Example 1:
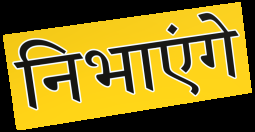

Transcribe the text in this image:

निभाएंगे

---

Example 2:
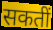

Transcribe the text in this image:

सकतीं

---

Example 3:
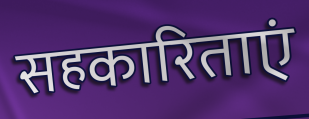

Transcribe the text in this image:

सहकारिताएं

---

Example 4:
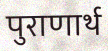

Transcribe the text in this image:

पुराणार्थ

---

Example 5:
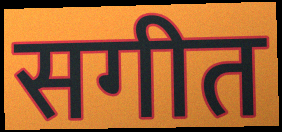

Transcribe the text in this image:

सगीत